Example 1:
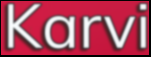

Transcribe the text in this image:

Karvi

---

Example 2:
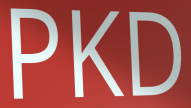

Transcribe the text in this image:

PKD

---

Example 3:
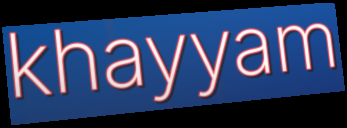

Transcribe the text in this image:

khayyam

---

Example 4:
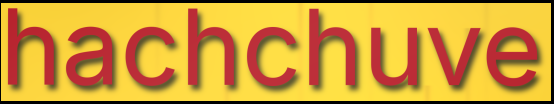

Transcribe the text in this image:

hachchuve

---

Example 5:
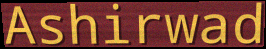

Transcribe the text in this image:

Ashirwad